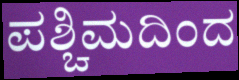
ಪಶ್ಚಿಮದಿಂದ